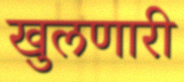
खुलणारी